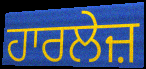
ਹਾਰਲੇਜ਼